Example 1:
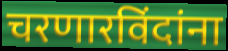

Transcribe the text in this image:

चरणारविंदांना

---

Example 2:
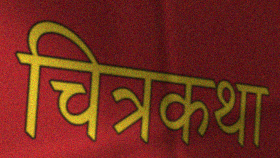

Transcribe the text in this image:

चित्रकथा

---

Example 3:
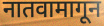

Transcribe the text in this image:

नातवामागून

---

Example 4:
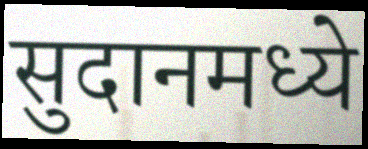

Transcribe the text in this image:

सुदानमध्ये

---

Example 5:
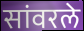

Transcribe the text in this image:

सांवरले